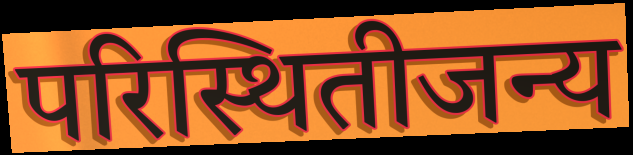
परिस्थितीजन्य